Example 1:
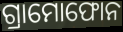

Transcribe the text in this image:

ଗ୍ରାମୋଫୋନ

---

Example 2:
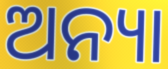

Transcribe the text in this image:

ଅନ୍ୟା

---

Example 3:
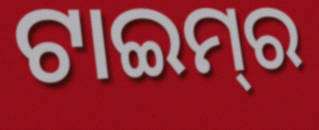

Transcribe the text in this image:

ଟାଇମ୍‌ର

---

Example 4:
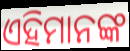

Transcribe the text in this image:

ଏହିମାନଙ୍କ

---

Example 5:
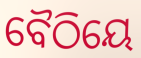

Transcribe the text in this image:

ବୈଠିୟେ